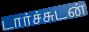
டார்ச்சுடன்